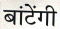
बांटेंगी